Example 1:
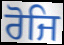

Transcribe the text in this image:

ਰੋਜਿ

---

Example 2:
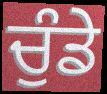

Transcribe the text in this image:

ਚੁੰਡੇ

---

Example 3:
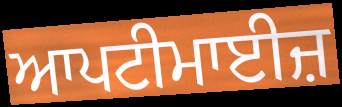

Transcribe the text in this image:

ਆਪਟੀਮਾਈਜ਼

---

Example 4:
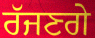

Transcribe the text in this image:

ਰੱਜਣਗੇ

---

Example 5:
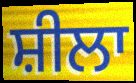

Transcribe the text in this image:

ਸ਼ੀਲਾ